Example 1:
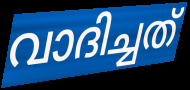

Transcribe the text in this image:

വാദിച്ചത്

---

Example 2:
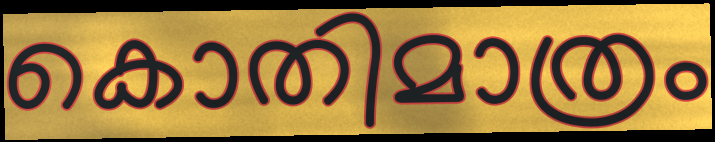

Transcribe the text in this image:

കൊതിമാത്രം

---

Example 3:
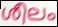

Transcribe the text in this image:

ശീലം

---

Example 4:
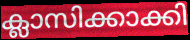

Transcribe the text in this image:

ക്ലാസിക്കാക്കി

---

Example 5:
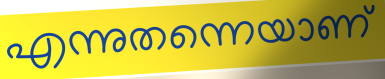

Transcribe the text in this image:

എന്നുതന്നെയാണ്